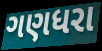
ગણધરા